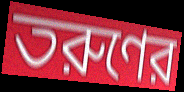
তরুণের